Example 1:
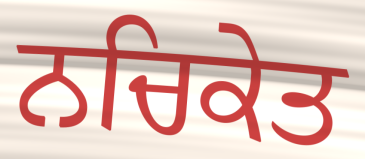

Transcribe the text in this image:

ਨਚਿਕੇਤ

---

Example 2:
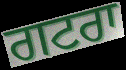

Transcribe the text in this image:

ਗਟਰਾ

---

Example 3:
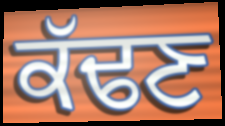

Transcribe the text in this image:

ਕੱਢਣ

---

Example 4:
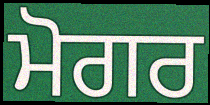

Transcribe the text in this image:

ਮੋਗਰ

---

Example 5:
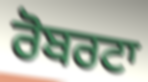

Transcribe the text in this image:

ਰੋਬਰਟਾ